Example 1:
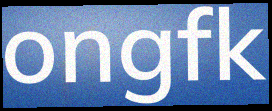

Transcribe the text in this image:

ongfk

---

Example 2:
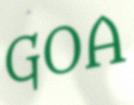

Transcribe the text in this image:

GOA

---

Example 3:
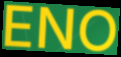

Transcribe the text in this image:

ENO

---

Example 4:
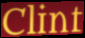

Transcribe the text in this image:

Clint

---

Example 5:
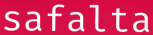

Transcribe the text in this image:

safalta